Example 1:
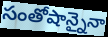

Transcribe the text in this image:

సంతోషాన్నైనా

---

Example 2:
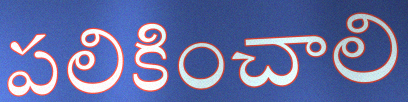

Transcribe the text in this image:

పలికించాలి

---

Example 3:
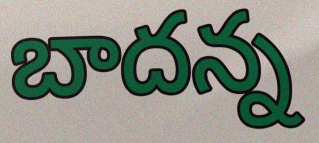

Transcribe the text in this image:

బాదన్న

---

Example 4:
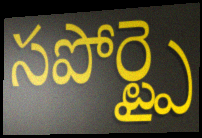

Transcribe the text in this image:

సపోర్ట్పై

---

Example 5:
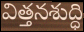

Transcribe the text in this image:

విత్తనశుద్ధి